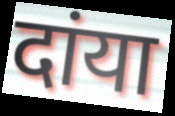
दांया